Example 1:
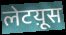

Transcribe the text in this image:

लेटय़ूस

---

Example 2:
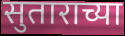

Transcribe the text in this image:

सुताराच्या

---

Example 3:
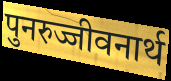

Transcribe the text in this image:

पुनरुज्जीवनार्थ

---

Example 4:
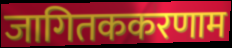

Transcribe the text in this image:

जागितककरणाम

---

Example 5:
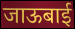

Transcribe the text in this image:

जाऊबाई